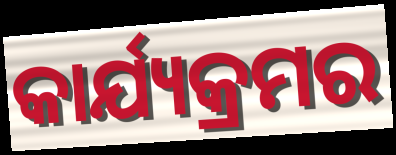
କାର୍ଯ୍ୟକ୍ରମର